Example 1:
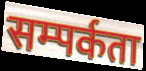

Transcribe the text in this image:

सम्पर्कता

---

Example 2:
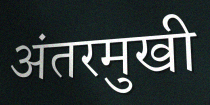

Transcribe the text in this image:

अंतरमुखी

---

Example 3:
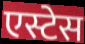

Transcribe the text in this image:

एस्टेस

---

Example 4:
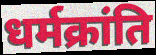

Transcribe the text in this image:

धर्मक्रांति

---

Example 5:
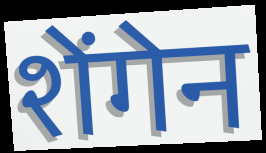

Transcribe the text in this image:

शेंगेन